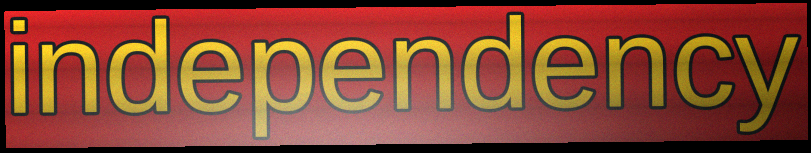
independency